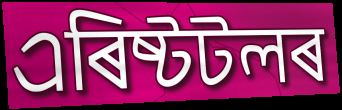
এৰিষ্টটলৰ